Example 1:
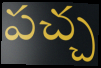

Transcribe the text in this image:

పచ్చ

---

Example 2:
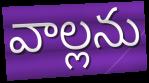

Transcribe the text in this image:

వాల్లను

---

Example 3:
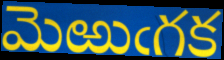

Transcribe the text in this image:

మెఱుఁగక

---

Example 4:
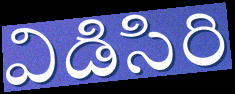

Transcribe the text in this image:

విడిసిరి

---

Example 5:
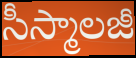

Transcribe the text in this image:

సీస్మాలజీ